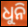
ଧୁନି